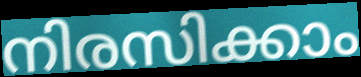
നിരസിക്കാം